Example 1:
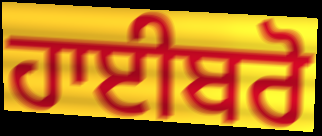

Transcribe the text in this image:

ਹਾਈਬਰੋ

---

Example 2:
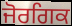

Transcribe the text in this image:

ਜੋਰਗਿਕ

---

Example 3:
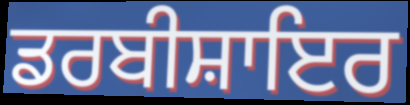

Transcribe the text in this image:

ਡਰਬੀਸ਼ਾਇਰ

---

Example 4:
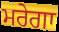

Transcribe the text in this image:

ਮਰੇਗਾ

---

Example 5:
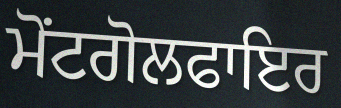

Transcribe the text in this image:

ਮੋਂਟਗੋਲਫਾਇਰ